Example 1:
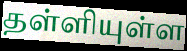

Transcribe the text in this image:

தள்ளியுள்ள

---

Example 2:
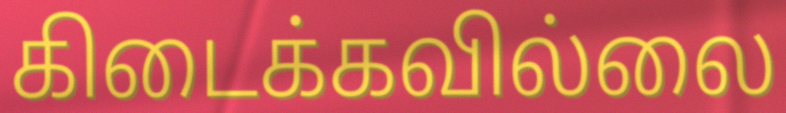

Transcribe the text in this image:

கிடைக்கவில்லை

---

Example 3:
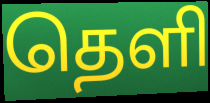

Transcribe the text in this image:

தெளி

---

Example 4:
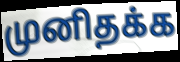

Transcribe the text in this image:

முனிதக்க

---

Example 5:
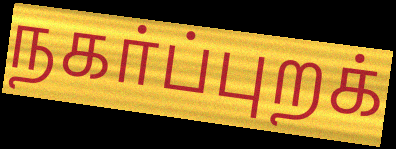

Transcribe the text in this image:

நகர்ப்புறக்